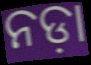
ନଡ଼ା